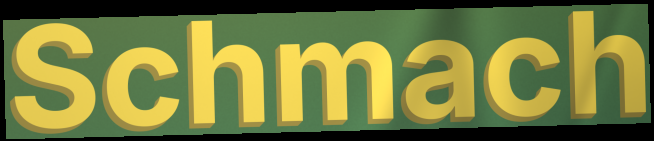
Schmach